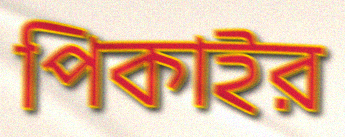
পিকাইর